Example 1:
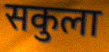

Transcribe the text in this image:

सकुला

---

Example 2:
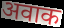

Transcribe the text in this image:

अवाक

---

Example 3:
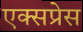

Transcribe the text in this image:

एक्सप्रेस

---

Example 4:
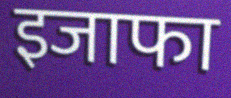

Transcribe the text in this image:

इजाफा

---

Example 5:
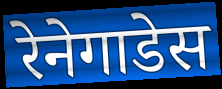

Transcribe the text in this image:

रेनेगाडेस